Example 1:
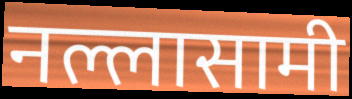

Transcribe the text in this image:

नल्लासामी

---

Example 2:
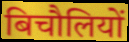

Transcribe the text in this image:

बिचौलियों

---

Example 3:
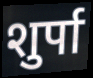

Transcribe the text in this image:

शुर्पा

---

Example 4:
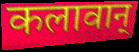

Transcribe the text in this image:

कलावान्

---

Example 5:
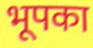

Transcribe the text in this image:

भूपका